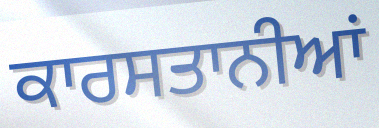
ਕਾਰਸਤਾਨੀਆਂ